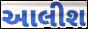
આલીશ